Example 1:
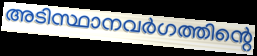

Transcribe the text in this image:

അടിസ്ഥാനവർഗത്തിന്റെ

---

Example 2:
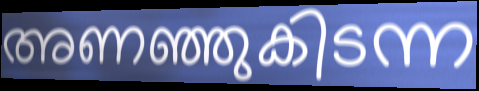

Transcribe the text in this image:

അണഞ്ഞുകിടന്ന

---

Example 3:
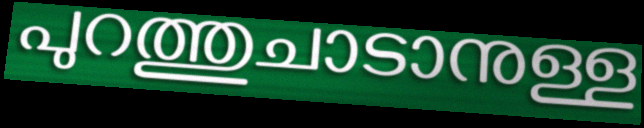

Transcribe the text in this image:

പുറത്തുചാടാനുള്ള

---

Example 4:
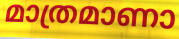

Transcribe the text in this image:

മാത്രമാണാ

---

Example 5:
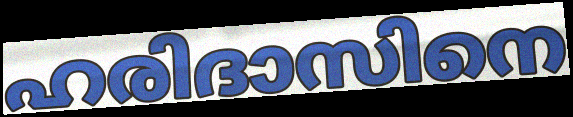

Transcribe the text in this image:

ഹരിദാസിനെ